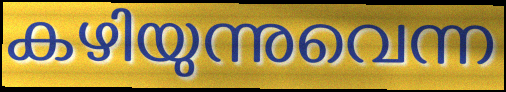
കഴിയുന്നുവെന്ന